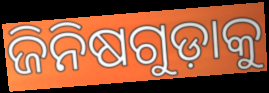
ଜିନିଷଗୁଡ଼ାକୁ